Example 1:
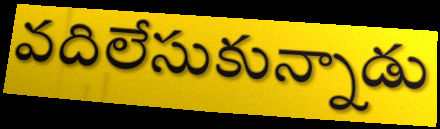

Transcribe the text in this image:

వదిలేసుకున్నాడు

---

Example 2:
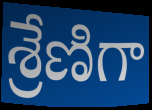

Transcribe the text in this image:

శ్రేణిగా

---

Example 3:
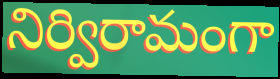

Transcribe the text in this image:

నిర్విరామంగా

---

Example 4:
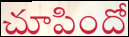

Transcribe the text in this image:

చూపిందో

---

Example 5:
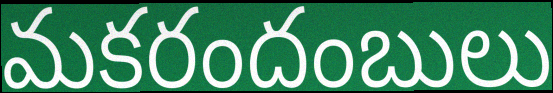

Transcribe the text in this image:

మకరందంబులు